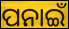
ପନାଇଁ